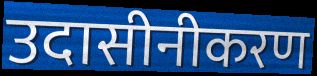
उदासीनीकरण